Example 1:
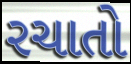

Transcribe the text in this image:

રચાતો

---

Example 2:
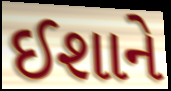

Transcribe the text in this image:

ઈશાને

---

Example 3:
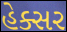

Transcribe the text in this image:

હેક્સર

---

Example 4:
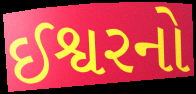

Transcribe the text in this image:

ઈશ્વરનો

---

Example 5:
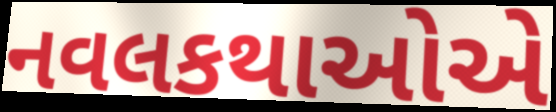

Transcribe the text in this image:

નવલકથાઓએ